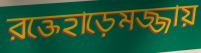
রক্তেহাড়েমজ্জায়